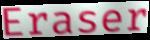
Eraser